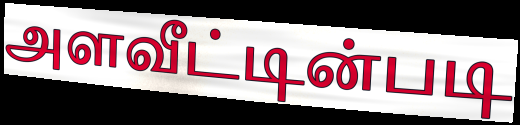
அளவீட்டின்படி